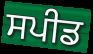
ਸਪੀਡ